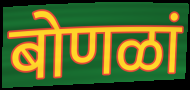
बोणळां